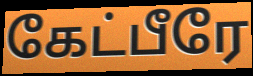
கேட்பீரே